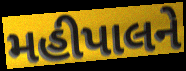
મહીપાલને